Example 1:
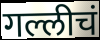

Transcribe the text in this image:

गल्लीचं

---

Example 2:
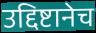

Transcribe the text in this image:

उद्दिष्टानेच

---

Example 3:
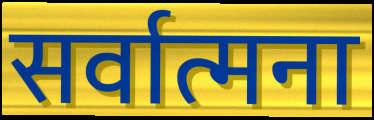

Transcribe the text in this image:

सर्वात्मना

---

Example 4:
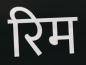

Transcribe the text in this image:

रिम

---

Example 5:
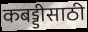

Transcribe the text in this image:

कबड्डीसाठी